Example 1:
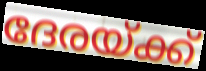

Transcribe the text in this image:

ദേരയ്ക്ക്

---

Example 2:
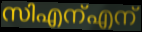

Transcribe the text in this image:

സിഎന്എന്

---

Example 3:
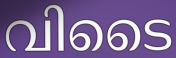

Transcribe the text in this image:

വിടൈ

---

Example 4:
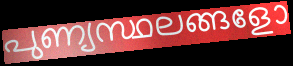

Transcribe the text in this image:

പുണ്യസ്ഥലങ്ങളോ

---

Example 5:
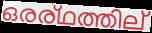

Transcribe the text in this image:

ഒരര്ഥത്തില്